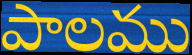
పాలము